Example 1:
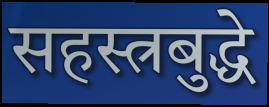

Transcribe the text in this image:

सहस्त्रबुद्धे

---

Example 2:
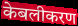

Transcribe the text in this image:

केबलीकरण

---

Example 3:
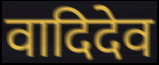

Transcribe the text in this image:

वादिदेव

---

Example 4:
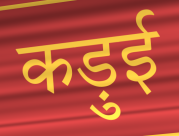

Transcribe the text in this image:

कड़ुई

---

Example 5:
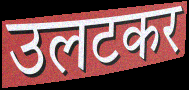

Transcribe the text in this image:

उलटकर